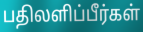
பதிலளிப்பீர்கள்